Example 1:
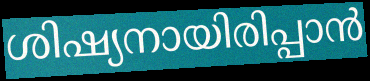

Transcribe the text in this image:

ശിഷ്യനായിരിപ്പാൻ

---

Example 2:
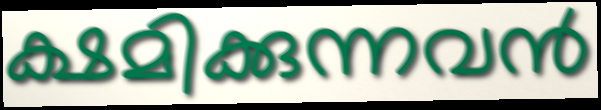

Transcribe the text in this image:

ക്ഷമിക്കുന്നവൻ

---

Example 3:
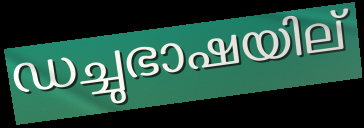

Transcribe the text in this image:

ഡച്ചുഭാഷയില്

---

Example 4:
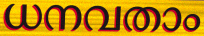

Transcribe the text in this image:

ധനവതാം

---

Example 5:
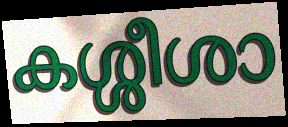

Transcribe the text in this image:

കശ്ശീശാ